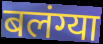
बलंग्या